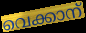
വെക്കാന്